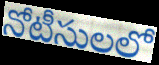
నోటీసులలో